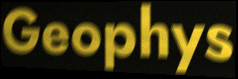
Geophys